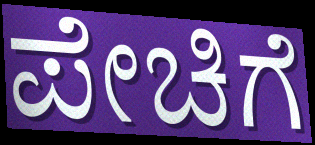
ಪೇಚಿಗೆ